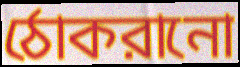
ঠোকরানো